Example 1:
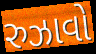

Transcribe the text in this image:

રુઝાવો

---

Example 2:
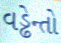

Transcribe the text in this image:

વડ્ઢેન્તો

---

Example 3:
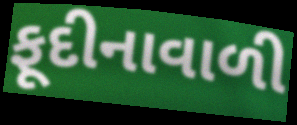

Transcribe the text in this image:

ફૂદીનાવાળી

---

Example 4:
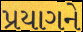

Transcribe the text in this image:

પ્રયાગને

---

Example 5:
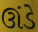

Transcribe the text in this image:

ઊંડે